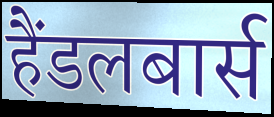
हैंडलबार्स